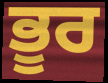
ਭੂਰ